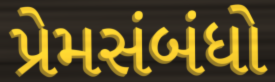
પ્રેમસંબંધો